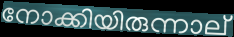
നോക്കിയിരുന്നാല്